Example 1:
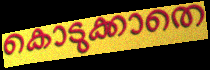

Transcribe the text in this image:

കൊടുക്കാതെ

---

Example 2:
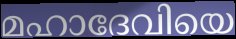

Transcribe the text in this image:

മഹാദേവിയെ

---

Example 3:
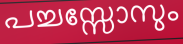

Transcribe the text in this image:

പച്ചസ്സോസും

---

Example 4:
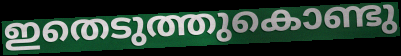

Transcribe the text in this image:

ഇതെടുത്തുകൊണ്ടു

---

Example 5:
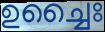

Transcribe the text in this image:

ഉച്ചൈഃ